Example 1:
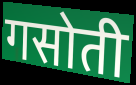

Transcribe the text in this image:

गसोती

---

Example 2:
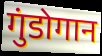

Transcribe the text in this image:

गुंडोगान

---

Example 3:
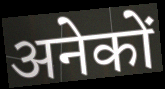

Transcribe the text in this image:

अनेकों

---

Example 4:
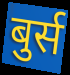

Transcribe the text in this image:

बुर्स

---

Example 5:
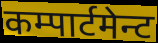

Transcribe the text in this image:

कम्पार्टमेन्ट